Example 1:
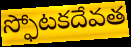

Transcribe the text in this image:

స్ఫోటకదేవత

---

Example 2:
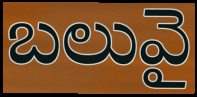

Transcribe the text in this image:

బలువై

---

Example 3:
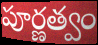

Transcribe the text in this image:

పూర్ణత్వం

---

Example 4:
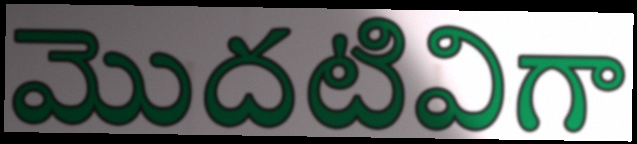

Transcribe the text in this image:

మొదటివిగా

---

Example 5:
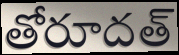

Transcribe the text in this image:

తోరూదత్